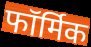
फॉर्मिक